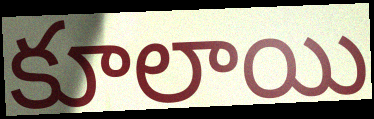
కూలాయి